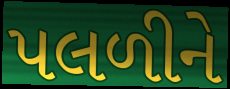
પલળીને